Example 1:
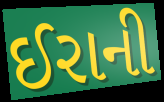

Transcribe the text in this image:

ઈરાની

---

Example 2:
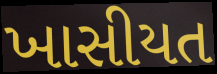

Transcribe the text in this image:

ખાસીયત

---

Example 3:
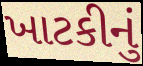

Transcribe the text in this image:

ખાટકીનું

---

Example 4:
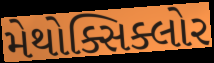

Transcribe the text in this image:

મેથોક્સિક્લોર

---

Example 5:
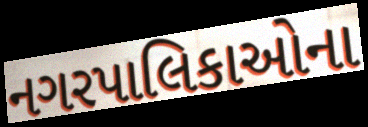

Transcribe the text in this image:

નગરપાલિકાઓના